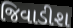
જિવાડીશ